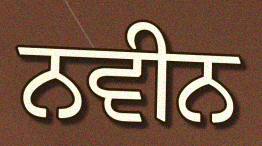
ਨਵੀਨ